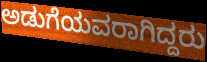
ಅಡುಗೆಯವರಾಗಿದ್ದರು